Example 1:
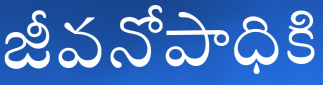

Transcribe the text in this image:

జీవనోపాధికి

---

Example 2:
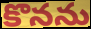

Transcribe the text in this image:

కొనను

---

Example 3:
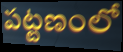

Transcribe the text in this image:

పట్టణంలో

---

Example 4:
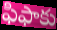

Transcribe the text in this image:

ఫిఫాకు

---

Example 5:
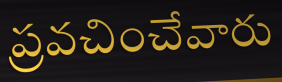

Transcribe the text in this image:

ప్రవచించేవారు